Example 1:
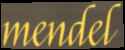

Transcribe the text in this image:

mendel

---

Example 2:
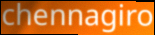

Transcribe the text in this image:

chennagiro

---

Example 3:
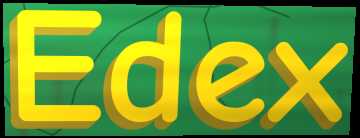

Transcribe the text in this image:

Edex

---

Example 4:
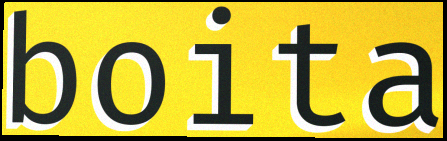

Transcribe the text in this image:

boita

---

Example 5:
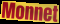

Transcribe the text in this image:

Monnet